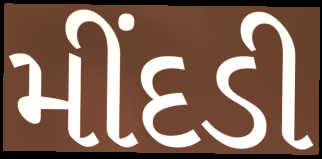
મીંદડી